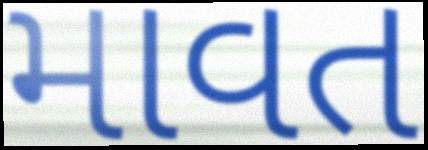
માવત